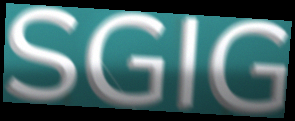
SGIG